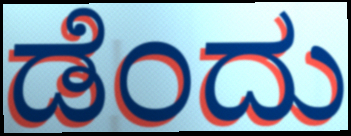
ಡೆಂದು